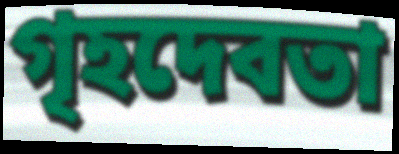
গৃহদেবতা